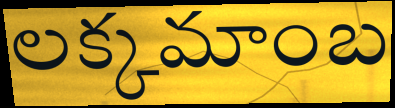
లక్కమాంబ